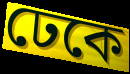
ঢেকে